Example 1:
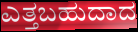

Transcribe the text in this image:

ಎತ್ತಬಹುದಾದ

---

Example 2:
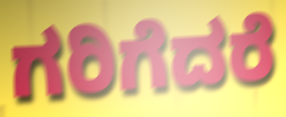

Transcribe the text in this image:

ಗರಿಗೆದರೆ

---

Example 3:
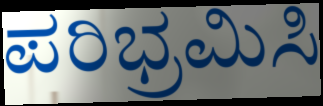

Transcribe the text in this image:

ಪರಿಭ್ರಮಿಸಿ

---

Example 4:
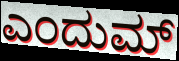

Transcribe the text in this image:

ಎಂದುಮ್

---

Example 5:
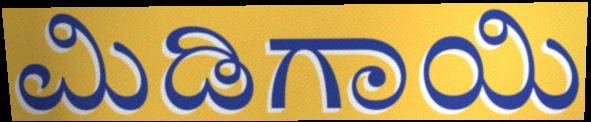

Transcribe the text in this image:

ಮಿಡಿಗಾಯಿ